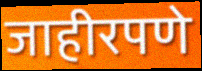
जाहीरपणे